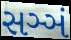
સઞ્ઞં